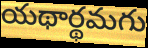
యథార్థమగు